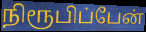
நிரூபிப்பேன்